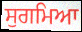
ਸੁਗਮਿਆ